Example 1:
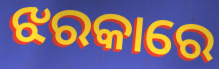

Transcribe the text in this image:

ଝରକାରେ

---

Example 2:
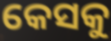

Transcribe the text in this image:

କେସକୁ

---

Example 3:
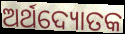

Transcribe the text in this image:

ଅର୍ଥଦ୍ୟୋତକ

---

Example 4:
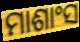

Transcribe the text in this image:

ମାଶାଂସ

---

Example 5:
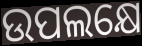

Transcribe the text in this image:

ଉପଲକ୍ଷେ